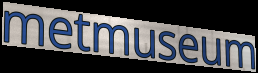
metmuseum